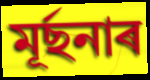
মূৰ্ছনাৰ